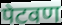
पेटवण